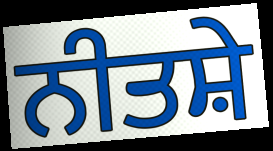
ਨੀਤਸ਼ੇ